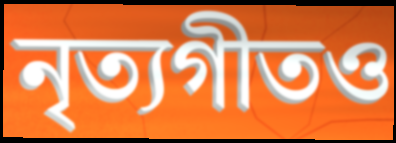
নৃত্যগীতও